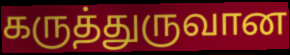
கருத்துருவான